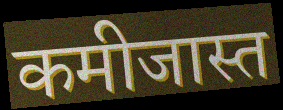
कमीजास्त